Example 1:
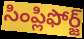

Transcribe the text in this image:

సింప్లిఫోర్జ్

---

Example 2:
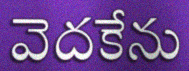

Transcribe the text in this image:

వెదకేను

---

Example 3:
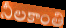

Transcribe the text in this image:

నీలకాంతి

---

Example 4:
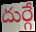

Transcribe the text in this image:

దుర్గే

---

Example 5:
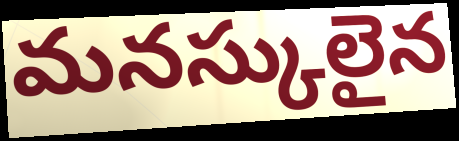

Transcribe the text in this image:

మనస్కులైన